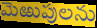
మెఱుపులను